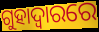
ଗୁହାଦ୍ଵାରରେ